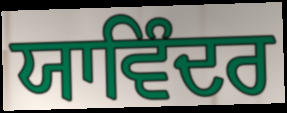
ਯਾਵਿੰਦਰ